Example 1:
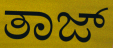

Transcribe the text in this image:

ತಾಜ್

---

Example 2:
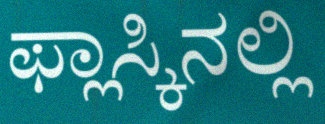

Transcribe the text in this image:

ಫ್ಲಾಸ್ಕಿನಲ್ಲಿ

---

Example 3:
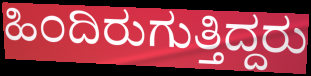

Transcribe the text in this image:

ಹಿಂದಿರುಗುತ್ತಿದ್ದರು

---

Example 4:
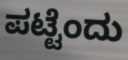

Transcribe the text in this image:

ಪಟ್ಟೆಂದು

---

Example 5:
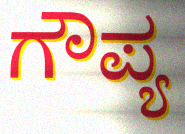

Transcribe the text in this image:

ಗೌಪ್ಯ